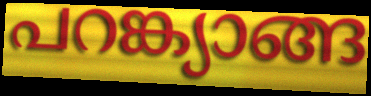
പറങ്ക്യാങ്ങ